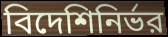
বিদেশিনির্ভর